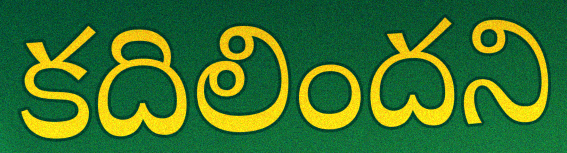
కదిలిందని